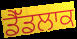
ਡੈੱਡਲਾਕ